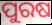
ପୁରଷ